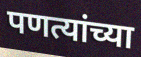
पणत्यांच्या